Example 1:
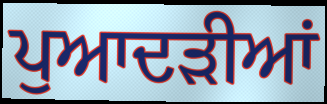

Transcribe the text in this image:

ਪੁਆਦੜੀਆਂ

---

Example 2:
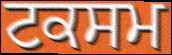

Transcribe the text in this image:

ਟਕਸਮ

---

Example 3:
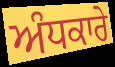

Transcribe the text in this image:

ਅੰਧਕਾਰੇ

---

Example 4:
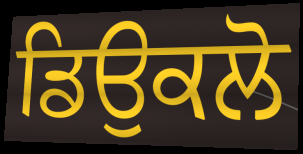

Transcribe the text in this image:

ਡਿਉਕਲੋ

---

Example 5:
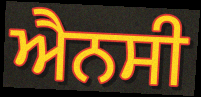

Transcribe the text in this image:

ਐਨਸੀ